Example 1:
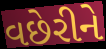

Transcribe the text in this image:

વછેરીને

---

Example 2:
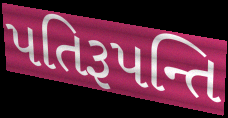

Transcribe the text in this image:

પતિરૂપન્તિ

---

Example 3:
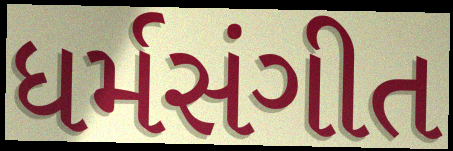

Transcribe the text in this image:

ધર્મસંગીત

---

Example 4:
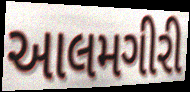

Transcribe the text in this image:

આલમગીરી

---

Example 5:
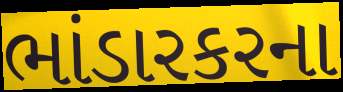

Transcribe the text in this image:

ભાંડારકરના